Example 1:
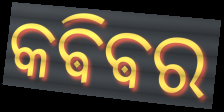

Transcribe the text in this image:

କଵିଵର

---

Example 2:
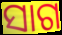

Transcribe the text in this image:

ସାଗ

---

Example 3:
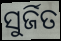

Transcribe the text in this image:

ସୁର୍ଜିତ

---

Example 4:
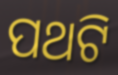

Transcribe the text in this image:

ପଥଟି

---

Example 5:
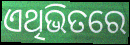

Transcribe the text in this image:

ଏଥିଭିତରେ